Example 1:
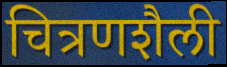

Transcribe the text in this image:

चित्रणशैली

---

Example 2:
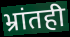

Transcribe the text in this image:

भ्रांतही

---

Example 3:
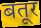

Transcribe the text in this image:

बतूर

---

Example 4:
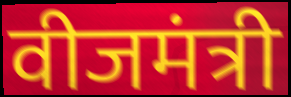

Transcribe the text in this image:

वीजमंत्री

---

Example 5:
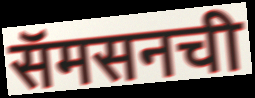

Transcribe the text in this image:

सॅमसनची